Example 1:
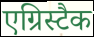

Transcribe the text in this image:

एग्रिस्टैक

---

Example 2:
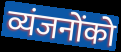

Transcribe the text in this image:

व्यंजनोंको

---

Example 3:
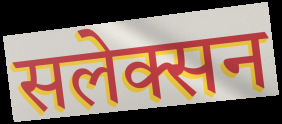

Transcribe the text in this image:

सलेक्सन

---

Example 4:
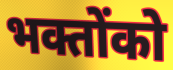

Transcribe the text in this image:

भक्तोंको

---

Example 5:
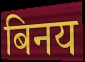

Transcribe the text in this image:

बिनय